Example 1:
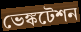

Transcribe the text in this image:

ভেঙ্কটেশন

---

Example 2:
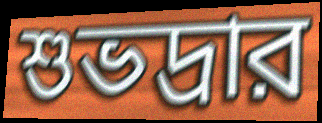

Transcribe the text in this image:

শুভদ্রার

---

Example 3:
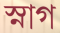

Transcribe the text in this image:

স্নাগ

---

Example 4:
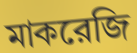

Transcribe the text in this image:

মাকরেজি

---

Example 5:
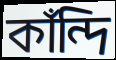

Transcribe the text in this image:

কাঁন্দি